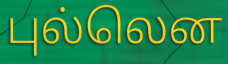
புல்லென